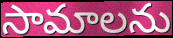
సామాలను